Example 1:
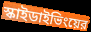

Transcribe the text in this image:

স্কাইডাইভিংয়ের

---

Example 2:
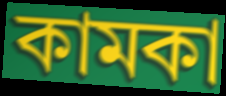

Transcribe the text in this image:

কামকা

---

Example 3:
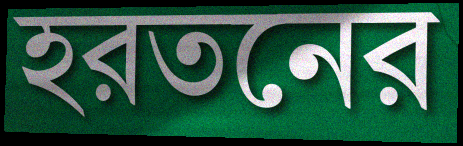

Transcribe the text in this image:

হরতনের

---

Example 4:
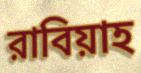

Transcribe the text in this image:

রাবিয়াহ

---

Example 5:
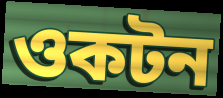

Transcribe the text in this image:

ওকটন